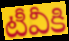
టీవీకి